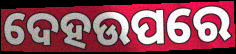
ଦେହଉପରେ